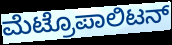
ಮೆಟ್ರೊಪಾಲಿಟನ್